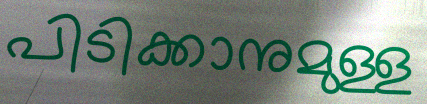
പിടിക്കാനുമുള്ള